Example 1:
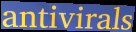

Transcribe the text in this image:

antivirals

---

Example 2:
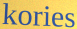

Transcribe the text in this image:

kories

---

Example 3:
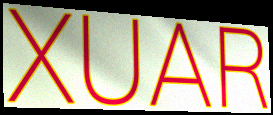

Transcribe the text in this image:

XUAR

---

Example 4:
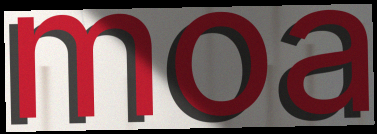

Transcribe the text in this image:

moa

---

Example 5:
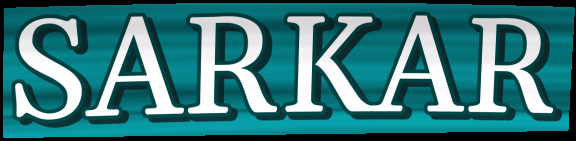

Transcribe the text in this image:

SARKAR